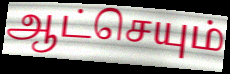
ஆட்செயும்